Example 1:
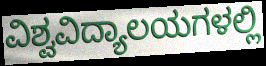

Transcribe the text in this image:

ವಿಶ್ವವಿದ್ಯಾಲಯಗಳಲ್ಲಿ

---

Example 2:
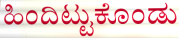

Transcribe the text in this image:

ಹಿಂದಿಟ್ಟುಕೊಂಡು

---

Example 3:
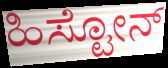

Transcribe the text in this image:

ಹಿಸ್ಟೋನ್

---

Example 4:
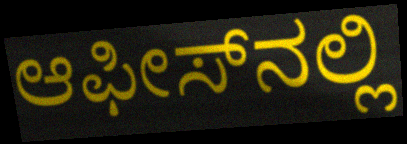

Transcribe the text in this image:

ಆಫೀಸ್‌ನಲ್ಲಿ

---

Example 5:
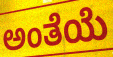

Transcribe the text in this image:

ಅಂತೆಯೆ